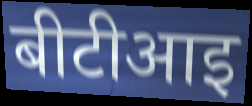
बीटीआइ